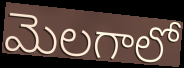
మెలగాలో